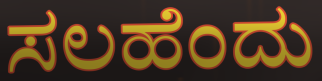
ಸಲಹೆಂದು